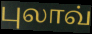
புலாவ்